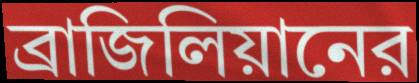
ব্রাজিলিয়ানের